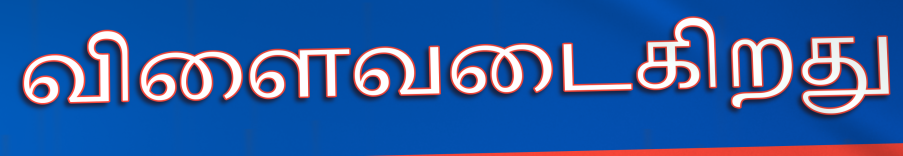
விளைவடைகிறது